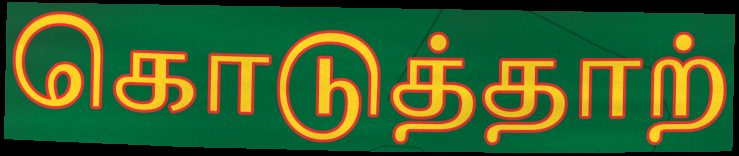
கொடுத்தாற்